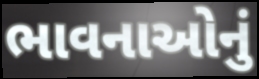
ભાવનાઓનું